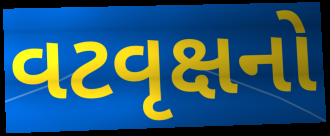
વટવૃક્ષનો